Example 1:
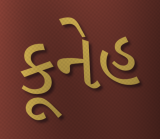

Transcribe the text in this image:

કૂનેહ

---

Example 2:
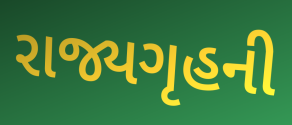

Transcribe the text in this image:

રાજ્યગૃહની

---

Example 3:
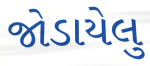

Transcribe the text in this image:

જોડાયેલુ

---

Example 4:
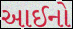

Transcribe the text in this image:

આઈનો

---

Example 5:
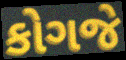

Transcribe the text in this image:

કોગજે